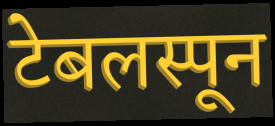
टेबलस्पून